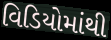
વિડિયોમાંથી